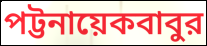
পট্টনায়েকবাবুর